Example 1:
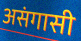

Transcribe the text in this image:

असंगासी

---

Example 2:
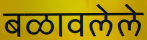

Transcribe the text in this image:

बळावलेले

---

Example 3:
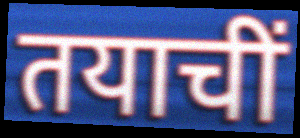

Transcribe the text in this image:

तयाचीं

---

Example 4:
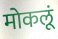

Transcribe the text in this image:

मोकलूं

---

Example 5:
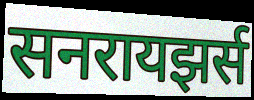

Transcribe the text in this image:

सनरायझर्स